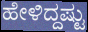
ಹೇಳಿದ್ದಷ್ಟು